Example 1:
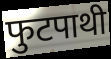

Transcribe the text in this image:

फुटपाथी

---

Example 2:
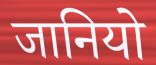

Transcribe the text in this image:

जानियो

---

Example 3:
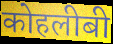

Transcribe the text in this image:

कोहलीबी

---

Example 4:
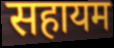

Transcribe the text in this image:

सहायम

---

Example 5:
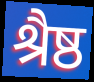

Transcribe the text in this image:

श्रैष्ठ